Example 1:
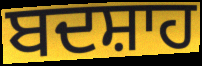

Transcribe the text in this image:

ਬਦਸ਼ਾਹ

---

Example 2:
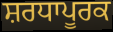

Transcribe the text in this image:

ਸ਼ਰਧਾਪੂਰਕ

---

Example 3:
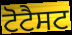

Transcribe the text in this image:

ਟੋਟੈਸਟ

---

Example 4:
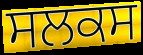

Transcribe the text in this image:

ਸਲਕਸ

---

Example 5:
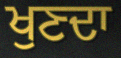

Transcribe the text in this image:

ਖੁਣਦਾ